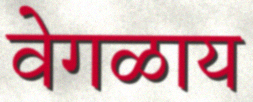
वेगळाय